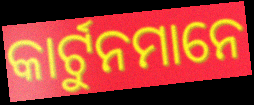
କାର୍ଟୁନମାନେ